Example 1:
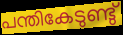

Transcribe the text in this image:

പന്തികേടുണ്ടു്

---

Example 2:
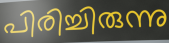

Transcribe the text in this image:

പിരിച്ചിരുന്നു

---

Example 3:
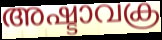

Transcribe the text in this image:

അഷ്ടാവക്ര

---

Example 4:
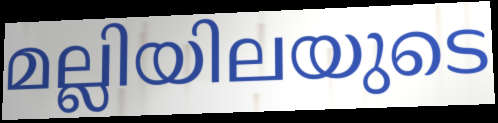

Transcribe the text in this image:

മല്ലിയിലയുടെ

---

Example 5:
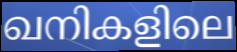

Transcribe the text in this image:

ഖനികളിലെ